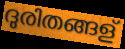
ദുരിതങ്ങള്